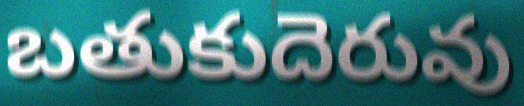
బతుకుదెరువు